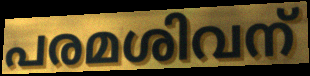
പരമശിവന്